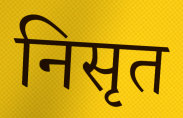
निसृत